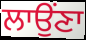
ਲਾਉਂਣਾ